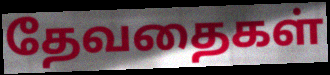
தேவதைகள்